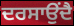
ਦਰਸਾਉਂਦੈ